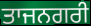
ਤਾਜਨਗਰੀ